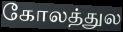
கோலத்துல